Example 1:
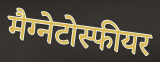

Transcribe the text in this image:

मैग्नेटोस्फीयर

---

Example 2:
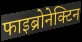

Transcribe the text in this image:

फाइब्रोनेक्टिन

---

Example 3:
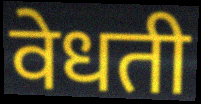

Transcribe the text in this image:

वेधती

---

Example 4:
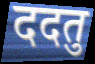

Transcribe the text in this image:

ददतु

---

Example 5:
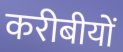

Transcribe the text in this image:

करीबीयों